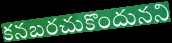
కనబరచుకొందునని